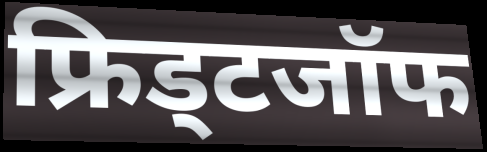
फ्रिड्टजॉफ